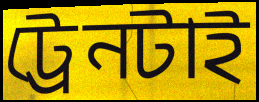
ট্রেনটাই